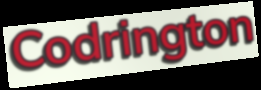
Codrington